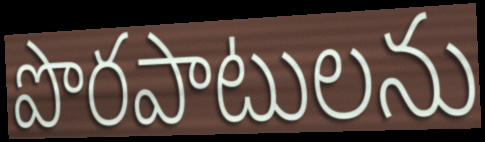
పొరపాటులను